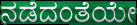
ನಡೆದಂತೆಯೇ